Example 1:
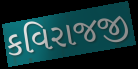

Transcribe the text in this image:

કવિરાજજી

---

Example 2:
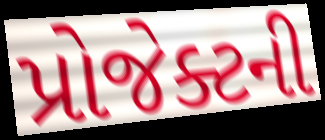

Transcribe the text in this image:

પ્રોજેક્ટની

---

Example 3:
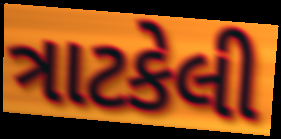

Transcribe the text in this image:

ત્રાટકેલી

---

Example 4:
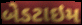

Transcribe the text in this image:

બેડટાઇમ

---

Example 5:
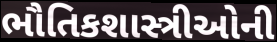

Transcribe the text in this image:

ભૌતિકશાસ્ત્રીઓની